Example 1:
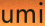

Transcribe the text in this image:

umi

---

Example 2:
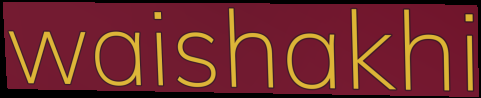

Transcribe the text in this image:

waishakhi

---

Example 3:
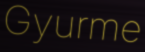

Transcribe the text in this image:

Gyurme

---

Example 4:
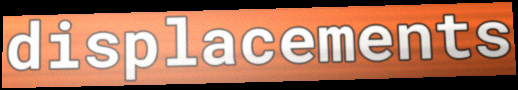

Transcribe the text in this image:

displacements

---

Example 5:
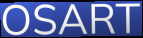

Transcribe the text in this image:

OSART